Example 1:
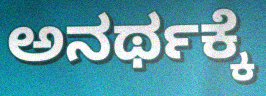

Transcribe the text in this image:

ಅನರ್ಥಕ್ಕೆ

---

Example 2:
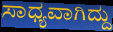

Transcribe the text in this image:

ಸಾಧ್ಯವಾಗಿದ್ದು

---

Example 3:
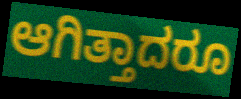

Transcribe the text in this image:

ಆಗಿತ್ತಾದರೂ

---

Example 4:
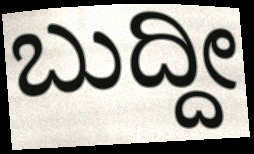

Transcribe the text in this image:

ಬುದ್ದೀ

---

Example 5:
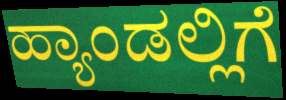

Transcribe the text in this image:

ಹ್ಯಾಂಡಲ್ಲಿಗೆ